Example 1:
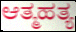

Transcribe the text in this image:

ಆತ್ಮಹತ್ಯ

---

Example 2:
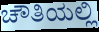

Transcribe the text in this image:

ಚೌತಿಯಲ್ಲಿ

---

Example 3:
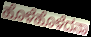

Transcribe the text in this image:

ಹೊಳೆಹೊಳೆದನಾ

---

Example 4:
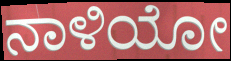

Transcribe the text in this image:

ನಾಳಿಯೋ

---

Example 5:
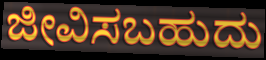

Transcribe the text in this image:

ಜೀವಿಸಬಹುದು